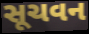
સૂચવન